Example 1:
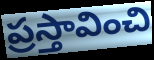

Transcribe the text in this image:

ప్రస్తావించి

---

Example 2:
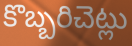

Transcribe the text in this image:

కొబ్బరిచెట్లు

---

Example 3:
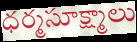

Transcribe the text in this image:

ధర్మసూక్ష్మాలు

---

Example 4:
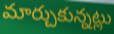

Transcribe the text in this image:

మార్చుకున్నట్లు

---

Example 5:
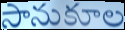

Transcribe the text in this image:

సానుకూల